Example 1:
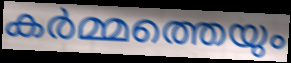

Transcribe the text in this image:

കർമ്മത്തെയും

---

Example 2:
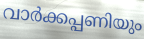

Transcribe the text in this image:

വാർക്കപ്പണിയും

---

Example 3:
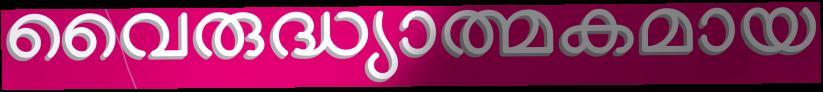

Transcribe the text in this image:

വൈരുദ്ധ്യാത്മകമായ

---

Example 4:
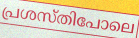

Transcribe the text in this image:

പ്രശസ്തിപോലെ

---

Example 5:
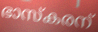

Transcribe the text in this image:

ഭാസ്‌കരന്